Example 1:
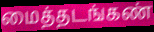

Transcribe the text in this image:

மைத்தடங்கண்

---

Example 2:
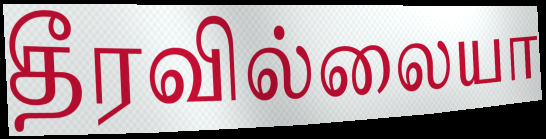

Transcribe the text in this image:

தீரவில்லையா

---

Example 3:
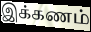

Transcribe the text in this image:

இக்கணம்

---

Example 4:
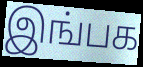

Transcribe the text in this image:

இங்பக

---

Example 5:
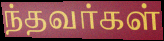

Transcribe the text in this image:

ந்தவர்கள்